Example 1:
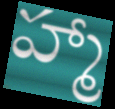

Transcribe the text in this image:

హ్మా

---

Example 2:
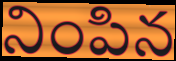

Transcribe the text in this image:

నింపిన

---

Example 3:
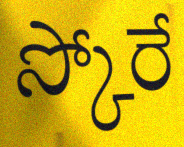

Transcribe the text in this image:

స్కోరే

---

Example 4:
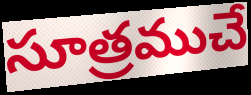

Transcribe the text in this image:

సూత్రముచే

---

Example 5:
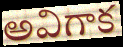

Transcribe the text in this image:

అవిగాక